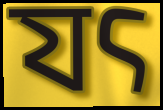
যৎ